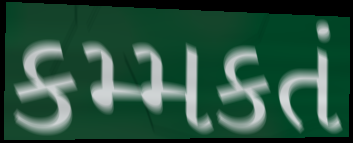
કમ્મકતં